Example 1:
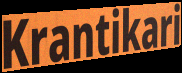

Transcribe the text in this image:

Krantikari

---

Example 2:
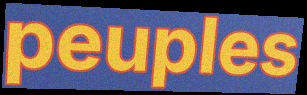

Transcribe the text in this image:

peuples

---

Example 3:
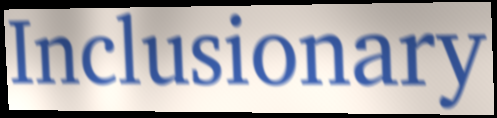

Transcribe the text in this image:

Inclusionary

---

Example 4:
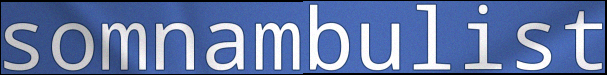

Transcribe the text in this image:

somnambulist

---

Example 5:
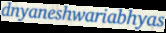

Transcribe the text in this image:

dnyaneshwariabhyas